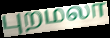
புறமலா